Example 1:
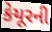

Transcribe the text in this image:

કેયૂરની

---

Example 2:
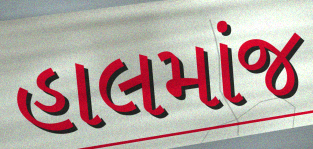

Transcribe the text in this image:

હાલમાંજ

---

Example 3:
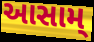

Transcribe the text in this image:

આસામ્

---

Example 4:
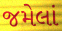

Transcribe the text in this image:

જમેલાં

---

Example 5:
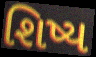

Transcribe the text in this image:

શિષ્ય